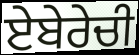
ਏਬੇਰੇਚੀ